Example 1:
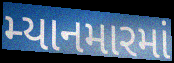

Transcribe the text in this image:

મ્યાનમારમાં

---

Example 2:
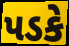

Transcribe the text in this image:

પડકે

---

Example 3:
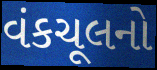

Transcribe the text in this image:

વંકચૂલનો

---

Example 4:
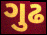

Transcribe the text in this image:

ગુઢ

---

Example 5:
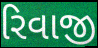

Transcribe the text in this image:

રિવાજી